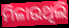
ମିଳାଉଥିଲି